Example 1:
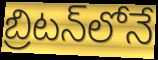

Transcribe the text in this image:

బ్రిటన్‌లోనే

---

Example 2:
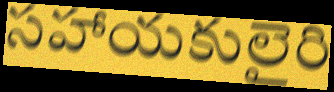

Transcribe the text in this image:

సహాయకులైరి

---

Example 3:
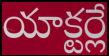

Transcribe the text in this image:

యాక్టర్లే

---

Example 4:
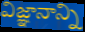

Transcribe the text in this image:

విజ్ఞానాన్ని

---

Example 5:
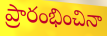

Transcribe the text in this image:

ప్రారంభించినా